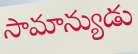
సామాన్యుడు